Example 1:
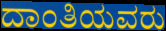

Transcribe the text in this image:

ದಾಂತಿಯವರು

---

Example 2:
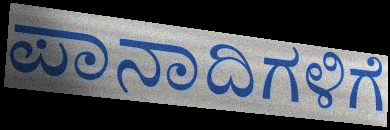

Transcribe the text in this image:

ಪಾನಾದಿಗಳಿಗೆ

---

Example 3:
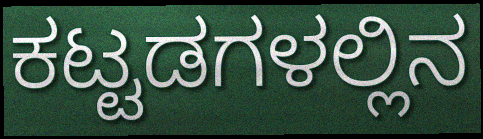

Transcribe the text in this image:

ಕಟ್ಟಡಗಳಲ್ಲಿನ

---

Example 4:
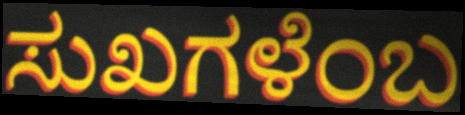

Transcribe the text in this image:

ಸುಖಗಳೆಂಬ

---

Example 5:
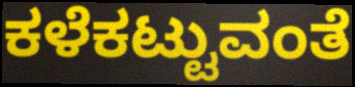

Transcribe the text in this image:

ಕಳೆಕಟ್ಟುವಂತೆ